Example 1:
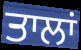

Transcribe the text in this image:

ਤਾਲਾਂ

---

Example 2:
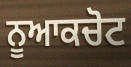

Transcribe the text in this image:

ਨੂਆਕਚੋਟ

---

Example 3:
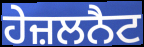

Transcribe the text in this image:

ਹੇਜ਼ਲਨੈਟ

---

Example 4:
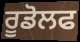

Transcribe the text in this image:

ਰੂਡੋਲਫ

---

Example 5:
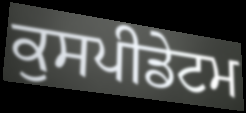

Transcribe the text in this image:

ਕੁਸਪੀਡੇਟਮ